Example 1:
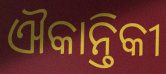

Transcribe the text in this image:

ଐକାନ୍ତିକୀ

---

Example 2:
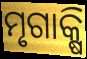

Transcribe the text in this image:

ମୃଗାକ୍ଷି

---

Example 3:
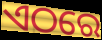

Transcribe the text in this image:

ଏଠରେ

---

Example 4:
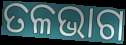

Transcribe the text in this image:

ତଳଭାଗ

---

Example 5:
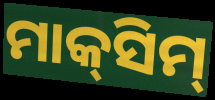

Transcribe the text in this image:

ମାକ୍‍ସିମ୍